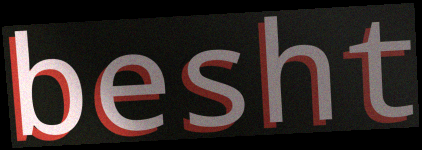
besht